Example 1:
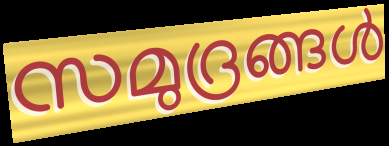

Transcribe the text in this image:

സമുദ്രങ്ങൾ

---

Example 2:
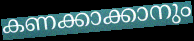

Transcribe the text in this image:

കണക്കാക്കാനും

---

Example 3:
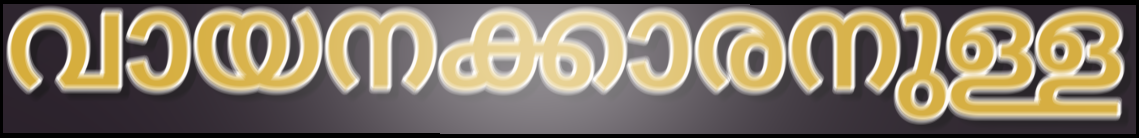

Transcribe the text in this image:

വായനക്കാരനുള്ള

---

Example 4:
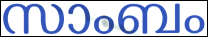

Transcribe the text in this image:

സാംബം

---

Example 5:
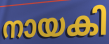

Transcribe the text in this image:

നായകി